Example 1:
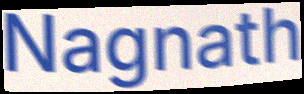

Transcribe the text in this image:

Nagnath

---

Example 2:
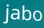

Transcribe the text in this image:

jabo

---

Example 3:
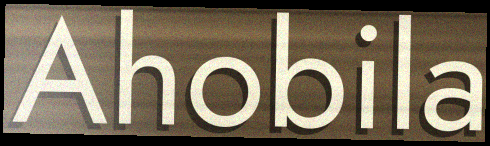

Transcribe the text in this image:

Ahobila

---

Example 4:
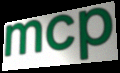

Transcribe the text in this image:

mcp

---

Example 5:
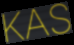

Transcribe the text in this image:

KAS